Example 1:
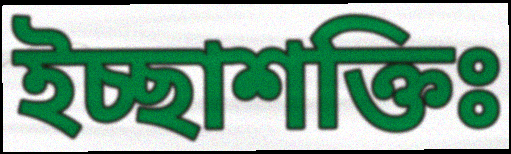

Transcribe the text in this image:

ইচ্ছাশক্তিঃ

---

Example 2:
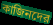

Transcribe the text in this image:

কাজিনদের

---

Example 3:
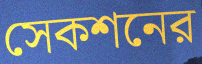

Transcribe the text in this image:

সেকশনের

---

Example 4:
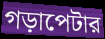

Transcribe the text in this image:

গড়াপেটার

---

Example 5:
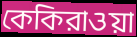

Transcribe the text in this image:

কেকিরাওয়া